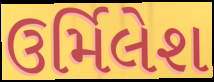
ઉર્મિલેશ